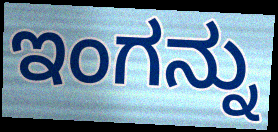
ಇಂಗನ್ನು